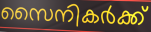
സൈനികർക്ക്